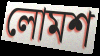
লোমশ